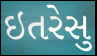
ઇતરેસુ